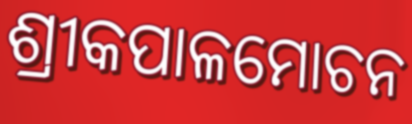
ଶ୍ରୀକପାଳମୋଚନ